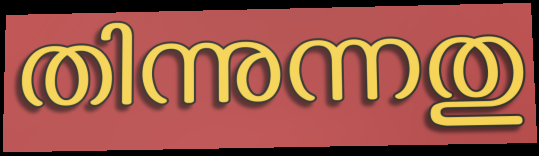
തിന്നുന്നതു